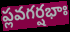
ప్లవగర్షభాః